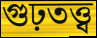
গুঢ়তত্ত্ব